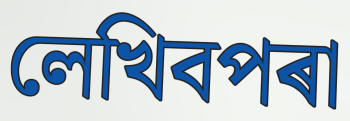
লেখিবপৰা